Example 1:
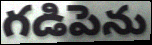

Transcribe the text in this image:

గడిపెను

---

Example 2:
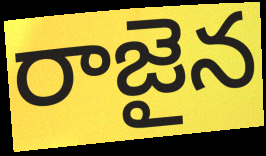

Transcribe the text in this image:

రాజైన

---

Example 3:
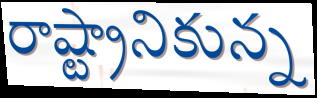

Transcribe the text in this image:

రాష్ట్రానికున్న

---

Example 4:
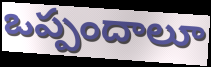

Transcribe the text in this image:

ఒప్పందాలూ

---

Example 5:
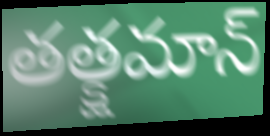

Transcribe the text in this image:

తత్క్షమాన్